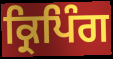
ਕ੍ਰਿਪਿੰਗ